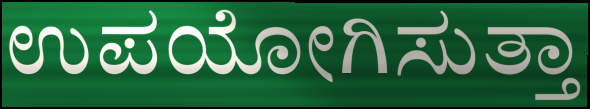
ಉಪಯೋಗಿಸುತ್ತಾ